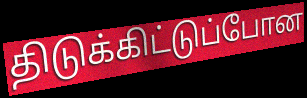
திடுக்கிட்டுப்போன